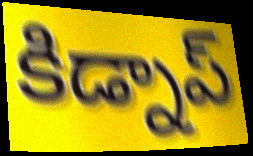
కిడ్నాప్